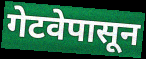
गेटवेपासून